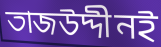
তাজউদ্দীনই